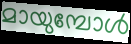
മായുമ്പോൾ